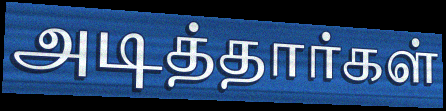
அடித்தார்கள்